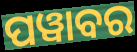
ପୱାବର